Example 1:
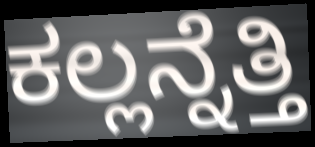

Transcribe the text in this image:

ಕಲ್ಲನ್ನೆತ್ತಿ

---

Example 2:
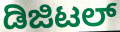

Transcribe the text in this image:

ಡಿಜಿಟಲ್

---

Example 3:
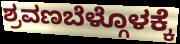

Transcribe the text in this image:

ಶ್ರವಣಬೆಳ್ಗೊಳಕ್ಕೆ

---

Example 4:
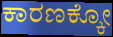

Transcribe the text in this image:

ಕಾರಣಕ್ಕೋ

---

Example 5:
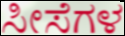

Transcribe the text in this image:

ಸೀಸೆಗಳ